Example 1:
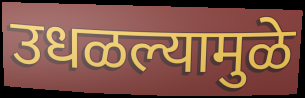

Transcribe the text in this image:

उधळल्यामुळे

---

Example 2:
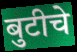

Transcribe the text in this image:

बुटीचे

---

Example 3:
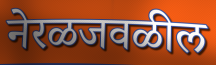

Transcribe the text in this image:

नेरळजवळील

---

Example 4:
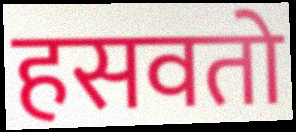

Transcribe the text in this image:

हसवतो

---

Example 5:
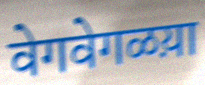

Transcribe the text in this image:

वेगवेगळय़ा